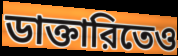
ডাক্তারিতেও